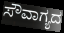
ಸೌವಾಗ್ಯದ